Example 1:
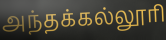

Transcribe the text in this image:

அந்தக்கல்லூரி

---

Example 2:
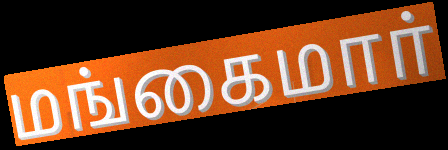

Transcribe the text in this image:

மங்கைமார்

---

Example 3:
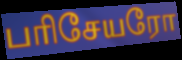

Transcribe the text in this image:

பரிசேயரோ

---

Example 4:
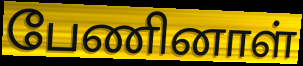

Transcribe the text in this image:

பேணினாள்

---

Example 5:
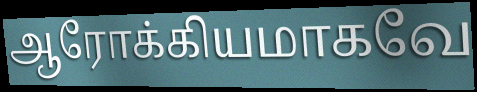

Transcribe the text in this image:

ஆரோக்கியமாகவே